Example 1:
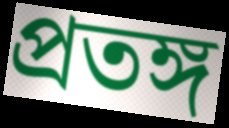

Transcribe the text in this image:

প্রতঙ্গ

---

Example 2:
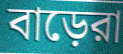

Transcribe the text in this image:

বাড়েরা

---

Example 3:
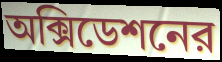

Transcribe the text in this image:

অক্সিডেশনের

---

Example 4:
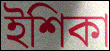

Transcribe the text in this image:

ইশিকা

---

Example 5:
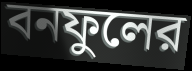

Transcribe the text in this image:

বনফুলের